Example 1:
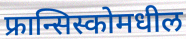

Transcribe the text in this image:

फ्रान्सिस्कोमधील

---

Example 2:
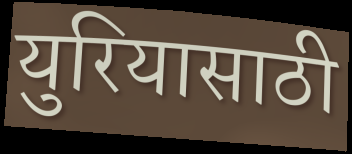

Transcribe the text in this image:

युरियासाठी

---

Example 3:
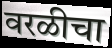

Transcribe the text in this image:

वरळीचा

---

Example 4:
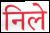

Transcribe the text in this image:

निले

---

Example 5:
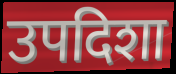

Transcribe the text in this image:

उपदिशा